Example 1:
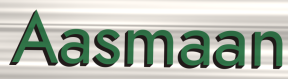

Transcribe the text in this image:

Aasmaan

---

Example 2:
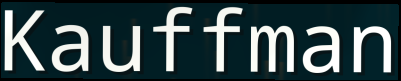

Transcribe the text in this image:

Kauffman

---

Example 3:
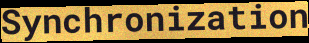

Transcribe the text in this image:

Synchronization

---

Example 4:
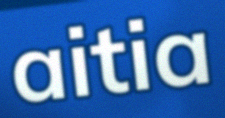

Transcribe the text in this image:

aitia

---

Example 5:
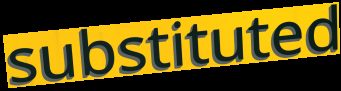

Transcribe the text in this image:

substituted